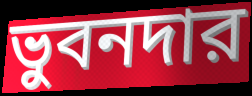
ভুবনদার